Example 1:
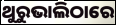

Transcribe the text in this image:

ଥୁରୁଭାଲିଠାରେ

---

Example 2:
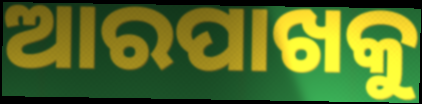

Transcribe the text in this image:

ଆରପାଖକୁ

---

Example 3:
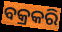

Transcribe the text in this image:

ବକ୍ରକରି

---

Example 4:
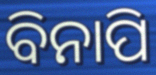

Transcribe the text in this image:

ବିନାପି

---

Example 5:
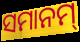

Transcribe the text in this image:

ସମାନମ୍